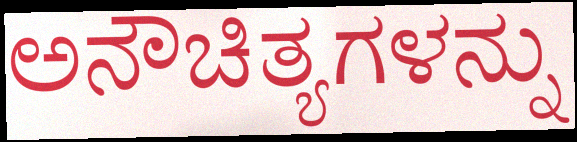
ಅನೌಚಿತ್ಯಗಳನ್ನು